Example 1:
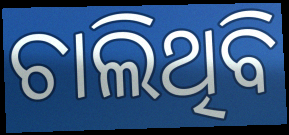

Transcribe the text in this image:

ଚାଲିଥିବି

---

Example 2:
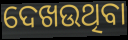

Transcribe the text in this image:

ଦେଖଉଥିବା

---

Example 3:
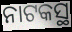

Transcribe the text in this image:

ନାଟକସ୍ଥ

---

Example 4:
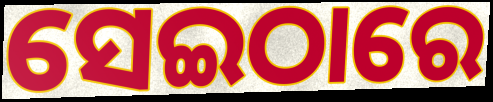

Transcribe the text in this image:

ସେଇଠାରେ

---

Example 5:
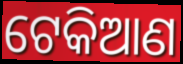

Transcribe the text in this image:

ଟେକିଆଣ